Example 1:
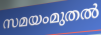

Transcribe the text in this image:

സമയംമുതൽ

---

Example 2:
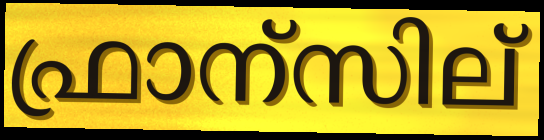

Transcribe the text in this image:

ഫ്രാന്സില്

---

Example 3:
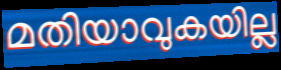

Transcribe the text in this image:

മതിയാവുകയില്ല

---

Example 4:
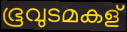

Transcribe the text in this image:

ഭൂവുടമകള്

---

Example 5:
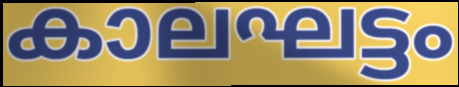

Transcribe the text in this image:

കാലഘട്ടം